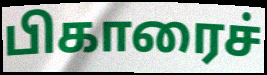
பிகாரைச்